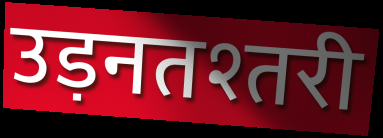
उड़नतश्तरी